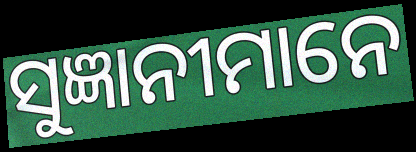
ସୁଜ୍ଞାନୀମାନେ